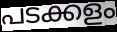
പടക്കളം